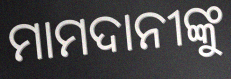
ମାମଦାନୀଙ୍କୁ